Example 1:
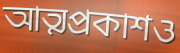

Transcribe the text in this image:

আত্মপ্রকাশও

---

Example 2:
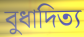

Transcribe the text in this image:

বুধাদিত্য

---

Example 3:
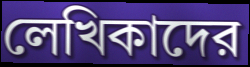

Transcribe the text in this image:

লেখিকাদের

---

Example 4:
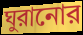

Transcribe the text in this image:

ঘুরানোর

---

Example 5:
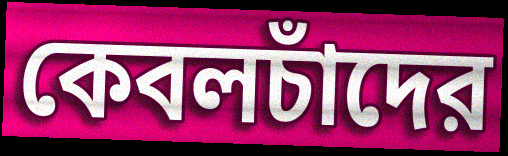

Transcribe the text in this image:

কেবলচাঁদের